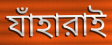
যাঁহারাই